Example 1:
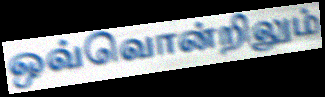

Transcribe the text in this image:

ஒவ்வொன்றிலும்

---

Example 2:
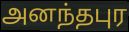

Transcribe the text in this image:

அனந்தபுர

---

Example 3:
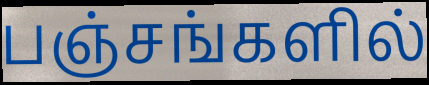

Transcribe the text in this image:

பஞ்சங்களில்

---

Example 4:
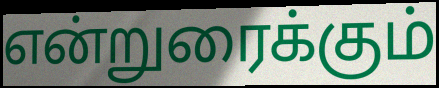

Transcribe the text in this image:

என்றுரைக்கும்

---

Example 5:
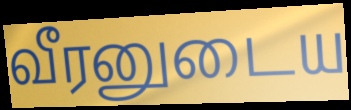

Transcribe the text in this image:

வீரனுடைய